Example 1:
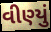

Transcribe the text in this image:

વીણ્યું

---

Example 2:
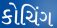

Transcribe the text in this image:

કોચિંગ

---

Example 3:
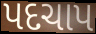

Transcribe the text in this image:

પદચાપ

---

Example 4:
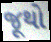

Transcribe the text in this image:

જૂથો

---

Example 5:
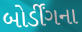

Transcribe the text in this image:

બોર્ડીંગના